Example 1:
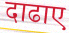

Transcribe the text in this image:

दाढाए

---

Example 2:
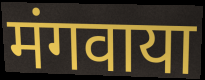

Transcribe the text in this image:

मंगवाया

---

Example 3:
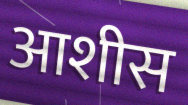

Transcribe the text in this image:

आशीस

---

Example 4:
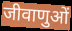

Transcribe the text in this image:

जीवाणुओं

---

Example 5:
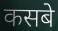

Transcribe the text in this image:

कसबे